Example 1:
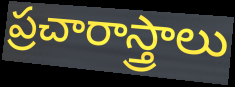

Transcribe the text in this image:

ప్రచారాస్త్రాలు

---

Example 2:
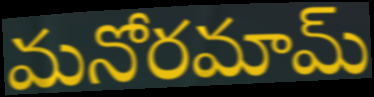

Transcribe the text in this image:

మనోరమామ్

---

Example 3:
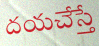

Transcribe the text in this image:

దయచేస్తే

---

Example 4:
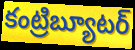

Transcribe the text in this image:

కంట్రిబ్యూటర్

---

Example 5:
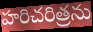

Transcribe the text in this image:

హరిచరిత్రను